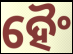
ହୈଂ